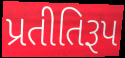
પ્રતીતિરૂપ